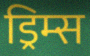
ड्रिम्स